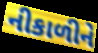
નીકાળીને